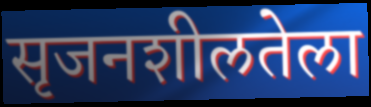
सृजनशीलतेला